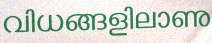
വിധങ്ങളിലാണു